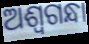
ଅଶ୍ୱଗନ୍ଧା